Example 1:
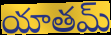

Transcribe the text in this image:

యాతమ్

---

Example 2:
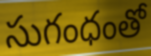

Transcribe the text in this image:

సుగంధంతో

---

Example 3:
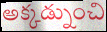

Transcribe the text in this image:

అక్కడ్నుంచి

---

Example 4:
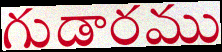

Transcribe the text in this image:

గుడారము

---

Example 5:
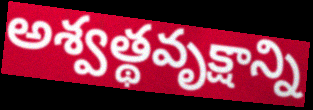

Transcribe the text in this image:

అశ్వత్థవృక్షాన్ని